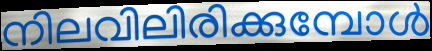
നിലവിലിരിക്കുമ്പോൾ